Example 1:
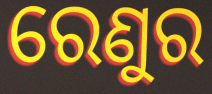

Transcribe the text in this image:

ରେଣୁର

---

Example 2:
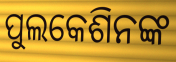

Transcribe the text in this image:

ପୁଲକେଶିନଙ୍କ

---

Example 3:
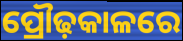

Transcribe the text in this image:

ପ୍ରୌଢ଼କାଳରେ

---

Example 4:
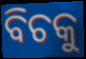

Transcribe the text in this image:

ବିଚକୁ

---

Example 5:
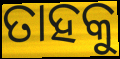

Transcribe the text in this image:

ତାହକୁ